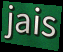
jais